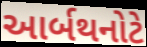
આર્બથનોટે